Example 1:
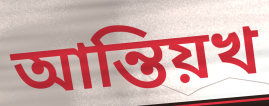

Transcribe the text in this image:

আন্তিয়খ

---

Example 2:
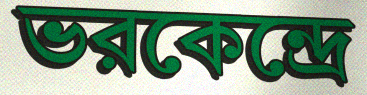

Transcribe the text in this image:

ভরকেন্দ্রে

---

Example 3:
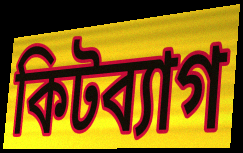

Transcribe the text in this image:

কিটব্যাগ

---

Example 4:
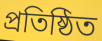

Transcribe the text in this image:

প্রতিষ্ঠিত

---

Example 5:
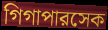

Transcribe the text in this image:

গিগাপারসেক